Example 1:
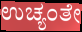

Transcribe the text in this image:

ಉಚ್ಯಂತೇ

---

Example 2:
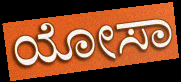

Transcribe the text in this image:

ಯೋಸಾ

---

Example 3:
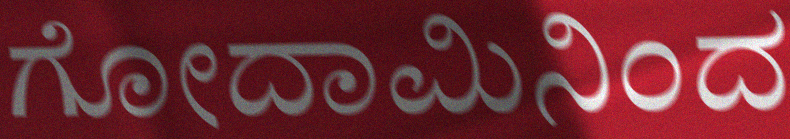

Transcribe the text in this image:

ಗೋದಾಮಿನಿಂದ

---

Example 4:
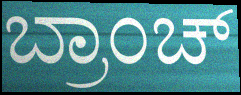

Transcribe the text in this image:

ಬ್ರಾಂಚ್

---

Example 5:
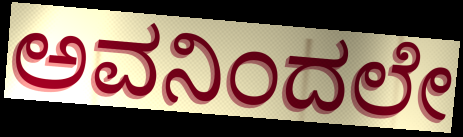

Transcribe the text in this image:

ಅವನಿಂದಲೇ